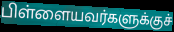
பிள்ளையவர்களுக்குச்